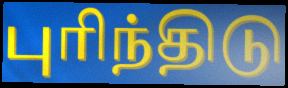
புரிந்திடு